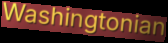
Washingtonian